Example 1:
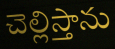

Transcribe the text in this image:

చెల్లిస్తాను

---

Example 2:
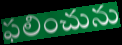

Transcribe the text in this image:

ఫలించును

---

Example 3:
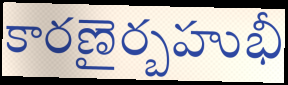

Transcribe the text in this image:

కారణైర్బహుభీ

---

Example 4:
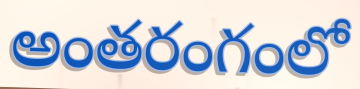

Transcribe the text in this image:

అంతరంగంలో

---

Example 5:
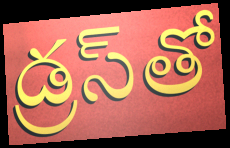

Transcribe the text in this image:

డ్రస్‌తో